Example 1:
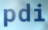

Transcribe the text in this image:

pdi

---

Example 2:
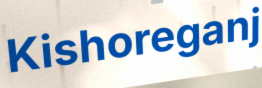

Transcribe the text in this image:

Kishoreganj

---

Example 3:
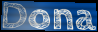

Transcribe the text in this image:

Dona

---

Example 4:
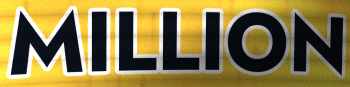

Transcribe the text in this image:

MILLION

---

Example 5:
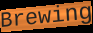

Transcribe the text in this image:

Brewing